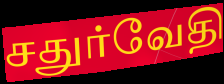
சதுர்வேதி